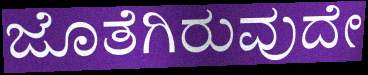
ಜೊತೆಗಿರುವುದೇ